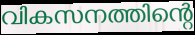
വികസനത്തിന്റെ